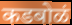
कडबोळं